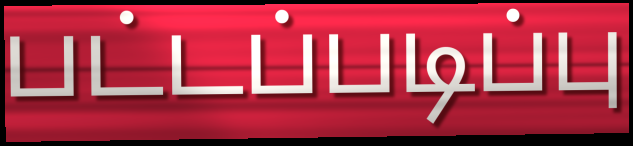
பட்டப்படிப்பு